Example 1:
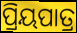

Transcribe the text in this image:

ପ୍ରିୟପାତ୍ର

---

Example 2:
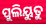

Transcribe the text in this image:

ପୁଲିୟୁତୁ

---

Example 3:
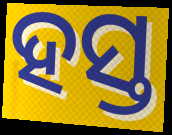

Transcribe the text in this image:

ହସ୍ତ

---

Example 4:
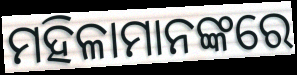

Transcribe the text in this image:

ମହିଳାମାନଙ୍କରେ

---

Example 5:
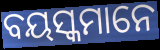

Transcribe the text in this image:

ବୟସ୍କମାନେ